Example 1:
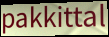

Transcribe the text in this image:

pakkittal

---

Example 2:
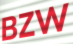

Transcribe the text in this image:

BZW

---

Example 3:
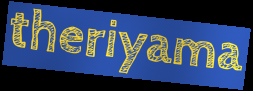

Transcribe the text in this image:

theriyama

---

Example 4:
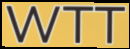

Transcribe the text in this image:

WTT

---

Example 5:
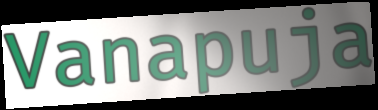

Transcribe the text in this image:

Vanapuja